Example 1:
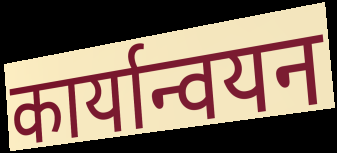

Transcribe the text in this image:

कार्यान्वयन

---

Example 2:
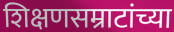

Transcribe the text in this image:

शिक्षणसम्राटांच्या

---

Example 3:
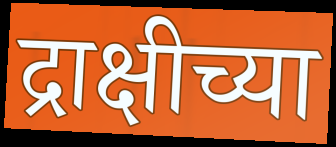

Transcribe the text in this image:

द्राक्षीच्या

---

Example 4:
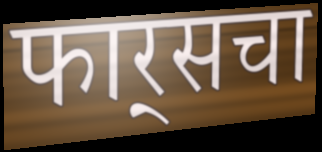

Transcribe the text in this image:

फार्सचा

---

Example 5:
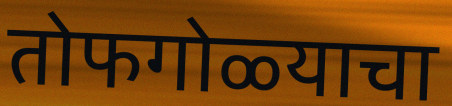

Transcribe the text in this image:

तोफगोळ्याचा